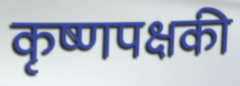
कृष्णपक्षकी